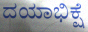
ದಯಾಭಿಕ್ಷೆ